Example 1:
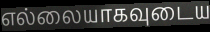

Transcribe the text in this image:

எல்லையாகவுடைய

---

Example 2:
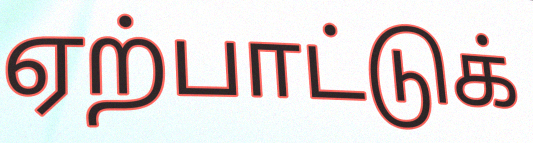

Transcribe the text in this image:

ஏற்பாட்டுக்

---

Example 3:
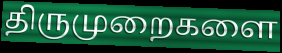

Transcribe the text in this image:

திருமுறைகளை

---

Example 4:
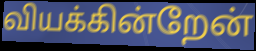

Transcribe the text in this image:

வியக்கின்றேன்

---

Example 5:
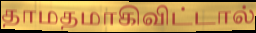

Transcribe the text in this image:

தாமதமாகிவிட்டால்